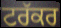
ਟਰੱਕਰ